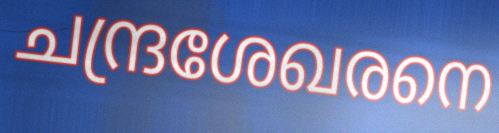
ചന്ദ്രശേഖരനെ